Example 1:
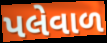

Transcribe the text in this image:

પલેવાળ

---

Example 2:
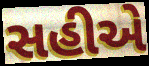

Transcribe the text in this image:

સહીએ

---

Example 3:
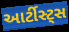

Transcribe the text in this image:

આર્ટીસ્ટ્સ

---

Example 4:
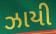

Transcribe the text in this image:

ઝાયી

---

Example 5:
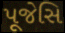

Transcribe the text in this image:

પૂજેસિ